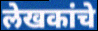
लेखकांचे